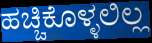
ಹಚ್ಚಿಕೊಳ್ಳಲಿಲ್ಲ